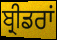
ਬ੍ਰੀਡਰਾਂ